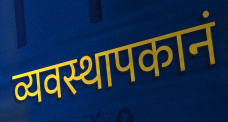
व्यवस्थापकानं